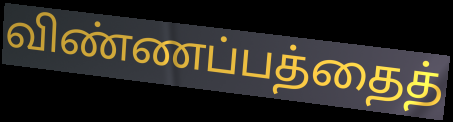
விண்ணப்பத்தைத்